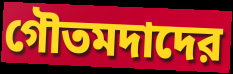
গৌতমদাদের